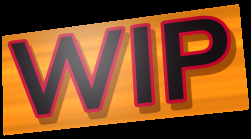
WIP